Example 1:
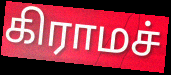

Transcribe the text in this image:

கிராமச்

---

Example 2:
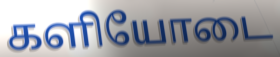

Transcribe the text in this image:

களியோடை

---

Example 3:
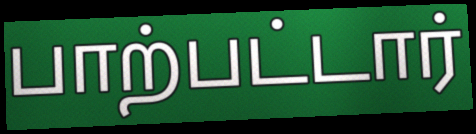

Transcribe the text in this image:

பாற்பட்டார்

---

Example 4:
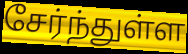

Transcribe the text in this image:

சேர்ந்துள்ள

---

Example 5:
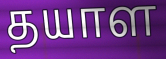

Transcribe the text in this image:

தயாள